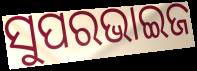
ସୁପରଭାଇଜ